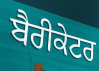
ਬੈਰੀਕੇਟਰ